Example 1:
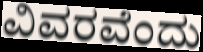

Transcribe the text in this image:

ವಿವರವೆಂದು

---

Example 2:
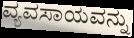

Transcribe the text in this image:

ವ್ಯವಸಾಯವನ್ನು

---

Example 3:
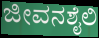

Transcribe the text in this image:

ಜೀವನಶೈಲಿ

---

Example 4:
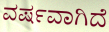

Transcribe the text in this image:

ವರ್ಷವಾಗಿದೆ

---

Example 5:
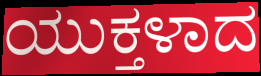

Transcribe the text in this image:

ಯುಕ್ತಳಾದ